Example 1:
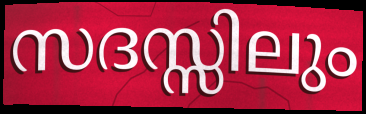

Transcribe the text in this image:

സദസ്സിലും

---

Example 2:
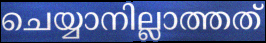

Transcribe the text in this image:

ചെയ്യാനില്ലാത്തത്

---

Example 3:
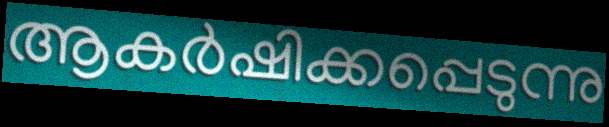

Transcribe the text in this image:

ആകർഷിക്കപ്പെടുന്നു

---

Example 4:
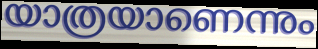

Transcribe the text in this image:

യാത്രയാണെന്നും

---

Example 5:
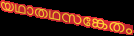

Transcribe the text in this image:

യഥാതഥസങ്കേതം